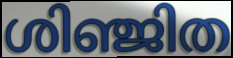
ശിഞ്ജിത